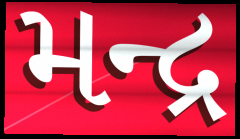
મન્દ્ર